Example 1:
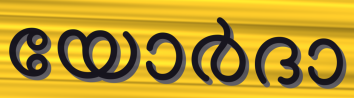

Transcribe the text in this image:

യോർദാ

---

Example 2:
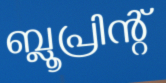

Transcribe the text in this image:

ബ്ലൂപ്രിന്റ്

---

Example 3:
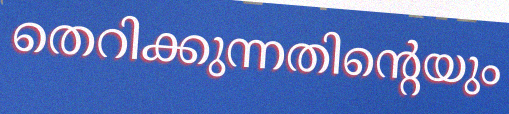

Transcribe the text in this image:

തെറിക്കുന്നതിന്റെയും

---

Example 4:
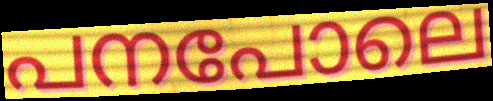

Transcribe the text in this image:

പനപോലെ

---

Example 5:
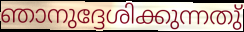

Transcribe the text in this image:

ഞാനുദ്ദേശിക്കുന്നതു്